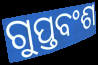
ଗୁପ୍ତବଂଶ